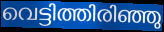
വെട്ടിത്തിരിഞ്ഞു